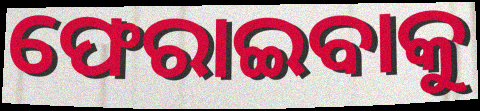
ଫେରାଇବାକୁ